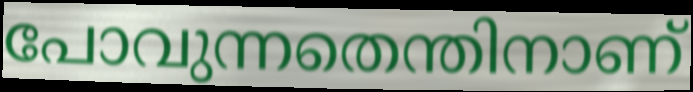
പോവുന്നതെന്തിനാണ്